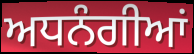
ਅਧਨੰਗੀਆਂ